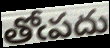
తోఁపదు